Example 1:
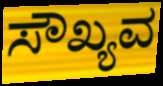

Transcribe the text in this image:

ಸೌಖ್ಯವ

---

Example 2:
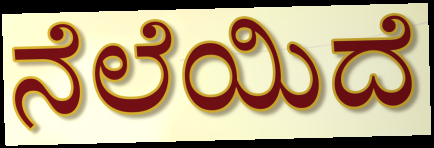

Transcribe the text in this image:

ನೆಲೆಯಿದೆ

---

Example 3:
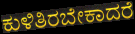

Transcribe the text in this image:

ಕುಳಿತಿರಬೇಕಾದರೆ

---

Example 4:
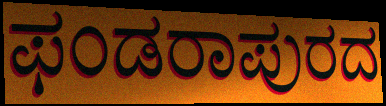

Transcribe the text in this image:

ಫಂಡರಾಪುರದ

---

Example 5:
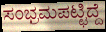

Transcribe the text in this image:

ಸಂಭ್ರಮಪಟ್ಟಿದ್ದೆ